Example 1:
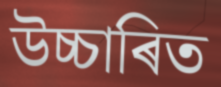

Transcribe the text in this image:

উচ্চাৰিত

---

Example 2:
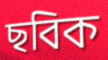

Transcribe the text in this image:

ছবিক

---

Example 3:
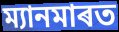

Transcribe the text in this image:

ম্যানমাৰত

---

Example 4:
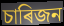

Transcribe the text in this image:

চাৰিজন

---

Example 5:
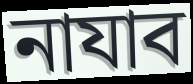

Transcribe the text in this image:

নাযাব